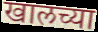
खालच्या